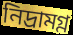
নিদ্ৰামগ্ন